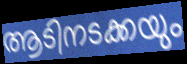
ആടിനടക്കയും